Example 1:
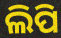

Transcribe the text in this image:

ଲିପି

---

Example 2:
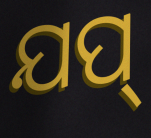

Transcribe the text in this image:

ଯପ୍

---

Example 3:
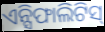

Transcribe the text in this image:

ଏନ୍ସିଫାଲିଟିସ୍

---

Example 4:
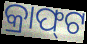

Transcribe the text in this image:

କ୍ରାଫ୍‌ଟ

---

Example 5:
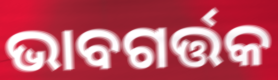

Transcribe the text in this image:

ଭାବଗର୍ତ୍ତକ